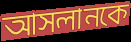
আসলানকে